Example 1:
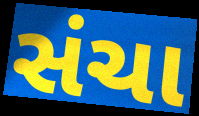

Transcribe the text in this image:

સંચા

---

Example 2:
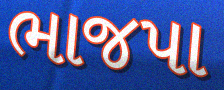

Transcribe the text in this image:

ભાજપા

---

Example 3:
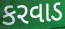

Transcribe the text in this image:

કરવાડ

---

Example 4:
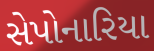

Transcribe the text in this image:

સેપોનારિયા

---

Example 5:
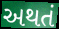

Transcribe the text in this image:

અથતં